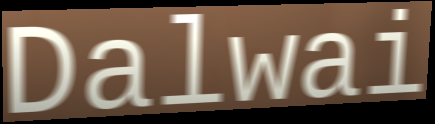
Dalwai